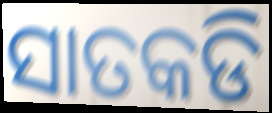
ସାତକଡି